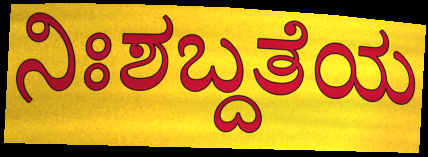
ನಿಃಶಬ್ದತೆಯ